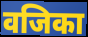
वजिका